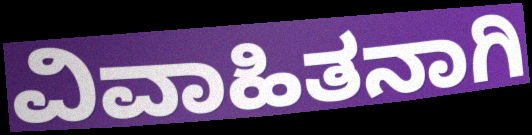
ವಿವಾಹಿತನಾಗಿ